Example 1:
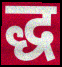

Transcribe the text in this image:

द्ध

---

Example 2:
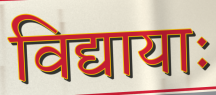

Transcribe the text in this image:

विद्यायाः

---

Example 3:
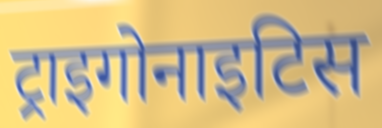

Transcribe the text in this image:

ट्राइगोनाइटिस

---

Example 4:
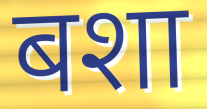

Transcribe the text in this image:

बशा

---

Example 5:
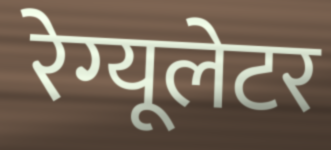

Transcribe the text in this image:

रेग्यूलेटर